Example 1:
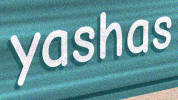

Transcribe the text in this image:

yashas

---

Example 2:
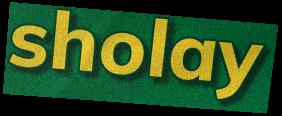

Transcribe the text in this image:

sholay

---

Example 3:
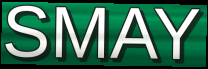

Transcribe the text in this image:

SMAY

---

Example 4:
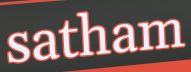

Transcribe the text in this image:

satham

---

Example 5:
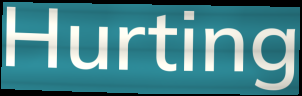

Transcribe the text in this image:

Hurting